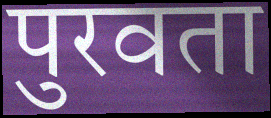
पुरवता